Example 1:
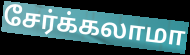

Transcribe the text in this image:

சேர்க்கலாமா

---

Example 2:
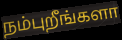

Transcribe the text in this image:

நம்புறீங்களா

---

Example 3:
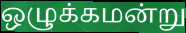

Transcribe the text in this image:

ஒழுக்கமன்று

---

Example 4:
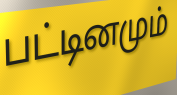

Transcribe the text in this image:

பட்டினமும்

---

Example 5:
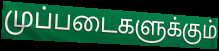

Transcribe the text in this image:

முப்படைகளுக்கும்